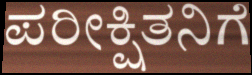
ಪರೀಕ್ಷಿತನಿಗೆ